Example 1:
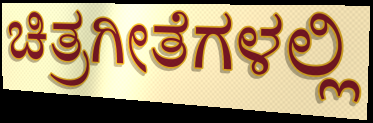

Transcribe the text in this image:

ಚಿತ್ರಗೀತೆಗಳಲ್ಲಿ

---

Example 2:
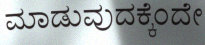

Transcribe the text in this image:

ಮಾಡುವುದಕ್ಕೆಂದೇ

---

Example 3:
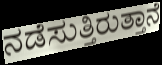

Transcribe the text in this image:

ನಡೆಸುತ್ತಿರುತ್ತಾನೆ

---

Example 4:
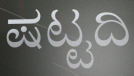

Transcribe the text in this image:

ಷಟ್ಟದಿ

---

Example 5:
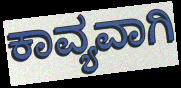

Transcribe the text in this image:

ಕಾವ್ಯವಾಗಿ